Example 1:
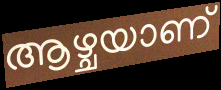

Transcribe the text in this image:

ആഴ്ചയാണ്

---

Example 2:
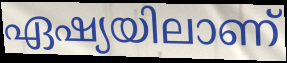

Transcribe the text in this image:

ഏഷ്യയിലാണ്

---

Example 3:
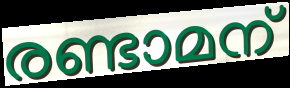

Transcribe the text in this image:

രണ്ടാമന്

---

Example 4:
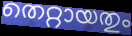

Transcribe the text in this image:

തെറ്റായതും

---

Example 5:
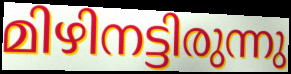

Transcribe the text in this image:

മിഴിനട്ടിരുന്നു